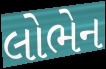
લોભેન